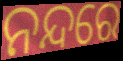
ନନ୍ଦରେ